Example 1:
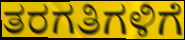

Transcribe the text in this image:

ತರಗತಿಗಳಿಗೆ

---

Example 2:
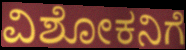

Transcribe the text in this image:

ವಿಶೋಕನಿಗೆ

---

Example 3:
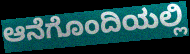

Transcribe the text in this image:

ಆನೆಗೊಂದಿಯಲ್ಲಿ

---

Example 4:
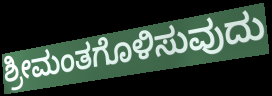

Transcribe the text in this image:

ಶ್ರೀಮಂತಗೊಳಿಸುವುದು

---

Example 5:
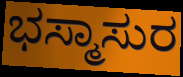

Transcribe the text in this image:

ಭಸ್ಮಾಸುರ